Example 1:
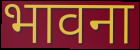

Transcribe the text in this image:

भावना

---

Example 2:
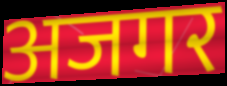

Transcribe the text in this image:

अजगर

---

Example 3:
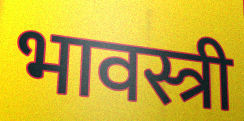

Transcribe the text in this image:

भावस्त्री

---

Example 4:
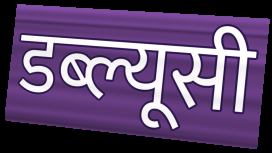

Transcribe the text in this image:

डब्ल्यूसी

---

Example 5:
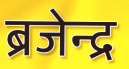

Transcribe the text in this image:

ब्रजेन्द्र